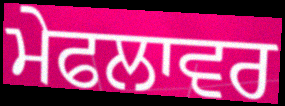
ਮੇਫਲਾਵਰ